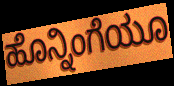
ಹೊನ್ನಿಂಗೆಯೂ